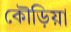
কৌড়িয়া